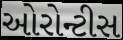
ઓરોન્ટીસ